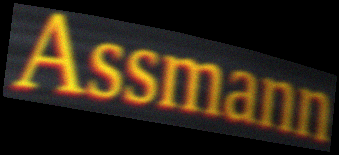
Assmann